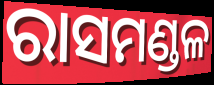
ରାସମଣ୍ଡଳ